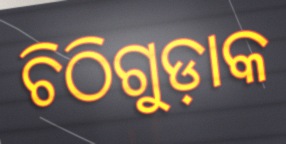
ଚିଠିଗୁଡ଼ାକ